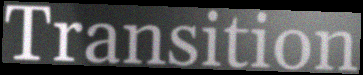
Transition